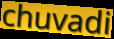
chuvadi